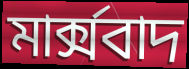
মার্ক্সবাদ